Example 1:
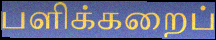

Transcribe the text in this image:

பளிக்கறைப்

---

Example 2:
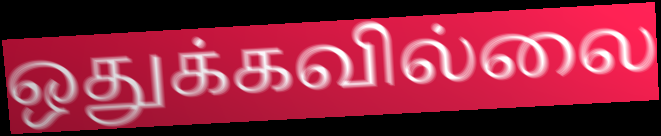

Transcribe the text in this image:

ஒதுக்கவில்லை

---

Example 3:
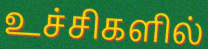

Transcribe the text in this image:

உச்சிகளில்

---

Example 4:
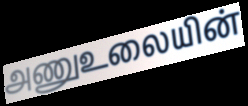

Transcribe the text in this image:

அணுஉலையின்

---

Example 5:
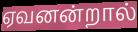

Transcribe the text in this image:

ஏவனன்றால்